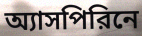
অ্যাসপিরিনে